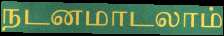
நடனமாடலாம்